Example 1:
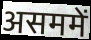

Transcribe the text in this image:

असममें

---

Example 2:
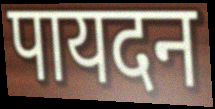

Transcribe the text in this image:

पायदन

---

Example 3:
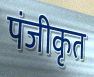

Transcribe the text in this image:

पंजीकृत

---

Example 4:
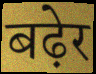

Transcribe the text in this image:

बढ़ेर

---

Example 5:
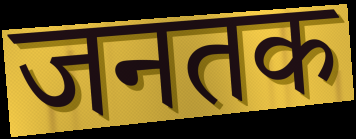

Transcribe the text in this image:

जनतक